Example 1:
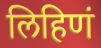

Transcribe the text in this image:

लिहिणं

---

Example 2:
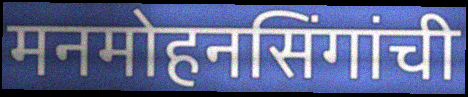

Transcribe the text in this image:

मनमोहनसिंगांची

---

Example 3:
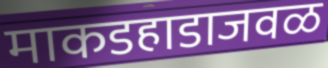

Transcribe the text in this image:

माकडहाडाजवळ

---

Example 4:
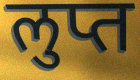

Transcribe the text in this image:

लुप्त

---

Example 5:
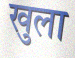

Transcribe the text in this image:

खुला